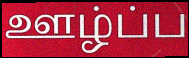
ஊழ்ப்ப